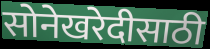
सोनेखरेदीसाठी